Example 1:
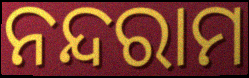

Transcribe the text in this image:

ନନ୍ଦରାମ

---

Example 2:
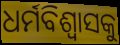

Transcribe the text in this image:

ଧର୍ମବିଶ୍ଵାସକୁ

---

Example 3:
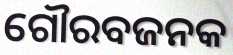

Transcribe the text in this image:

ଗୌରବଜନକ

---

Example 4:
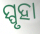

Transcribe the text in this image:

ସ୍ପୃହା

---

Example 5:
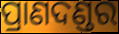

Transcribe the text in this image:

ପ୍ରାଣଦଣ୍ଡର